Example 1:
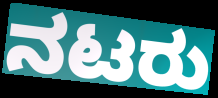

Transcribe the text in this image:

ನಟರು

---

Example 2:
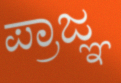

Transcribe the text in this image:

ಪ್ರಾಜ್ಞ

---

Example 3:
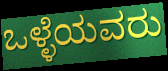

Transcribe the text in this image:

ಒಳ್ಳೆಯವರು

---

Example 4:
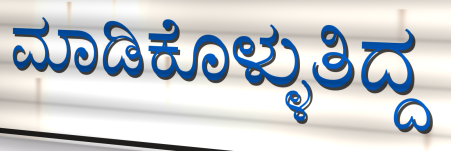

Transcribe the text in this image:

ಮಾಡಿಕೊಳ್ಳುತಿದ್ದ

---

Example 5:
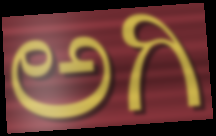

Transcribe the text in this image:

ಅಗಿ